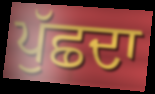
ਪੁੱਛਦਾ